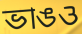
ভাঙও